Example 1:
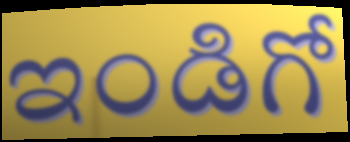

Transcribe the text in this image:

ఇండిగో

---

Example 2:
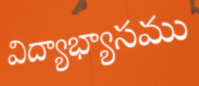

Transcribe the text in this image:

విద్యాభ్యాసము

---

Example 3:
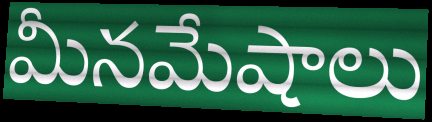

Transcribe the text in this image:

మీనమేషాలు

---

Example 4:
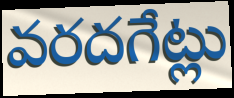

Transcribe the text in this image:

వరదగేట్లు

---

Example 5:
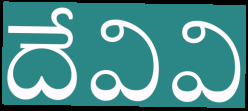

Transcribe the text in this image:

దేవివి